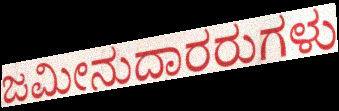
ಜಮೀನುದಾರರುಗಳು